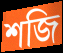
শজি